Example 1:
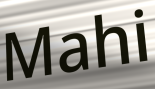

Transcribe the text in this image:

Mahi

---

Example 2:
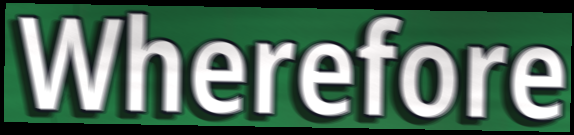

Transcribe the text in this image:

Wherefore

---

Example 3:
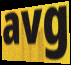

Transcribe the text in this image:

avg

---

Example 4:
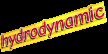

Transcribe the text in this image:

hydrodynamic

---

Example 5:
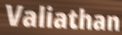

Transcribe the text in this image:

Valiathan